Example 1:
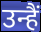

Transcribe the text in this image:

उन्‍हैं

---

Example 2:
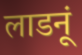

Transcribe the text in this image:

लाडनूं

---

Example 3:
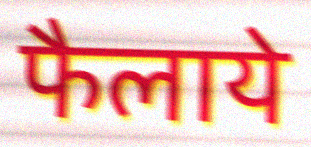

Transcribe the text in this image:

फैलाये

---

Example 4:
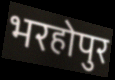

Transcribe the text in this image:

भरहोपुर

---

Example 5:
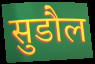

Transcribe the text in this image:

सुडौल